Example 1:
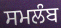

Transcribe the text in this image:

ਸਮਲੰਬ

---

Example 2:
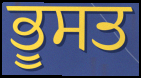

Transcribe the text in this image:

ਭੂਸਤ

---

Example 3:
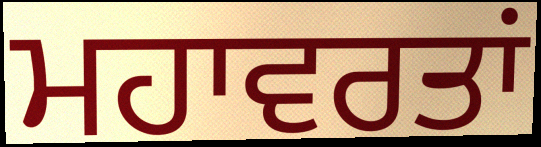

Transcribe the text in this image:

ਮਹਾਵਰਤਾਂ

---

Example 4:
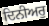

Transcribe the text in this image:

ਦਿਨੀਅਰੁ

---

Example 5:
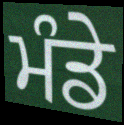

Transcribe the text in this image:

ਮੰਡੇ